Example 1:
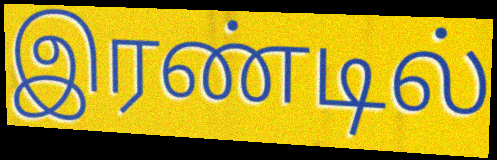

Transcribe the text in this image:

இரண்டில்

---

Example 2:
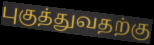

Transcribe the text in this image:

புகுத்துவதற்கு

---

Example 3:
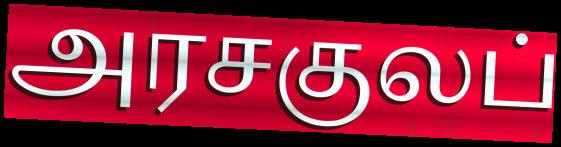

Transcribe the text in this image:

அரசகுலப்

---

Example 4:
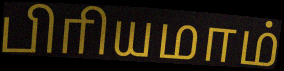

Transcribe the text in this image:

பிரியமாம்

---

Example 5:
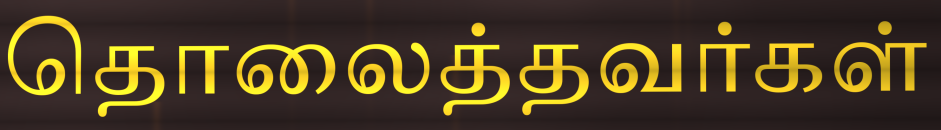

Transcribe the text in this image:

தொலைத்தவர்கள்